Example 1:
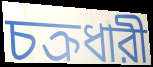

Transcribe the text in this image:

চক্রধারী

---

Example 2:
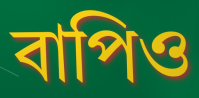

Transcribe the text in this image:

বাপিও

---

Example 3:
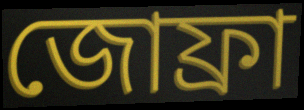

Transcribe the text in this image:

জোফ্রা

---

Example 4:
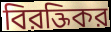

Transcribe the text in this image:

বিরক্তিকর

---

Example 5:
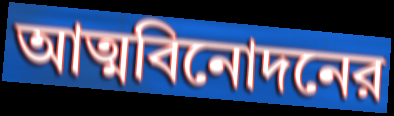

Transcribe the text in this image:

আত্মবিনোদনের